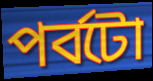
পৰ্বটো